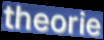
theorie